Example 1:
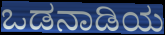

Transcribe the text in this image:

ಒಡನಾಡಿಯ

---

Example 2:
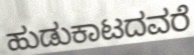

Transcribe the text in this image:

ಹುಡುಕಾಟದವರೆ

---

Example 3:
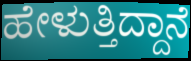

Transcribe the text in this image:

ಹೇಳುತ್ತಿದ್ದಾನೆ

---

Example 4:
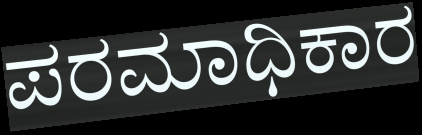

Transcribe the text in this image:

ಪರಮಾಧಿಕಾರ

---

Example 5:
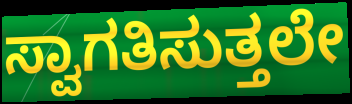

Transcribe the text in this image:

ಸ್ವಾಗತಿಸುತ್ತಲೇ